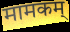
मामकम्